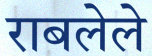
राबलेले